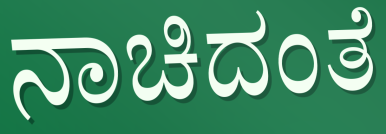
ನಾಚಿದಂತೆ